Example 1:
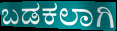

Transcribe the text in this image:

ಬಡಕಲಾಗಿ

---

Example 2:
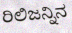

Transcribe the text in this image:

ರಿಲಿಜನ್ನಿನ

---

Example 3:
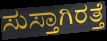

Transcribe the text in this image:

ಸುಸ್ತಾಗಿರತ್ತೆ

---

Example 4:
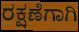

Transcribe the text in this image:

ರಕ್ಷಣೆಗಾಗಿ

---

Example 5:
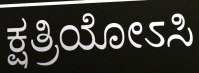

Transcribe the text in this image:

ಕ್ಷತ್ರಿಯೋಽಸಿ